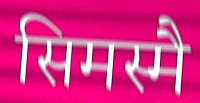
सिमस्मै